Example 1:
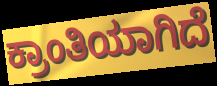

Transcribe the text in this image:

ಕ್ರಾಂತಿಯಾಗಿದೆ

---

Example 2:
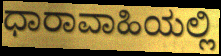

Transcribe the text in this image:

ಧಾರಾವಾಹಿಯಲ್ಲಿ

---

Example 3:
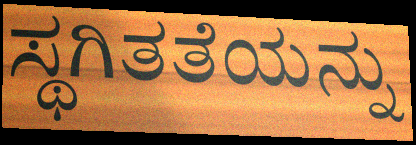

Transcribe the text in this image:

ಸ್ಥಗಿತತೆಯನ್ನು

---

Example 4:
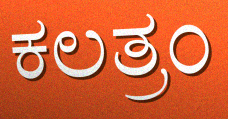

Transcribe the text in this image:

ಕಲತ್ರಂ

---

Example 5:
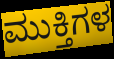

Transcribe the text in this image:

ಮುಕ್ತಿಗಳ